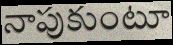
నాపుకుంటూ